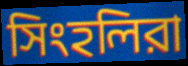
সিংহলিরা